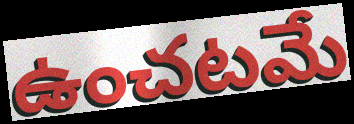
ఉంచటమే